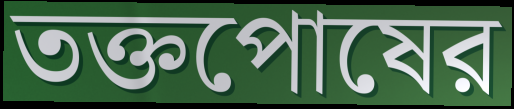
তক্তপোষের